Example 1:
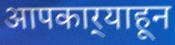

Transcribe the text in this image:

आपकार्याहून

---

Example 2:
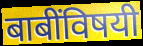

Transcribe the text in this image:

बाबींविषयी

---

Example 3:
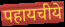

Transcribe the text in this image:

पहायचीये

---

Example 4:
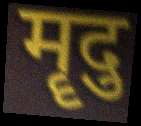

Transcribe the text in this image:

मॄदु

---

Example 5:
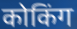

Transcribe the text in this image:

कोकिंग